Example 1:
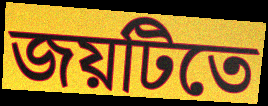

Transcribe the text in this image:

জয়টিতে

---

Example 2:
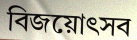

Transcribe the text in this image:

বিজয়োৎসব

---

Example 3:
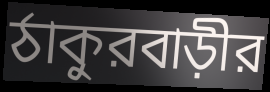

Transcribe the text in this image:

ঠাকুরবাড়ীর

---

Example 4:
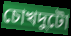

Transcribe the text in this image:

চোখদুটো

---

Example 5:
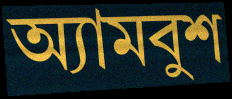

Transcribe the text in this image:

অ্যামবুশ